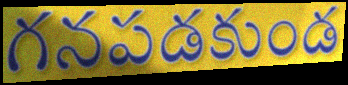
గనపడకుండ